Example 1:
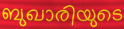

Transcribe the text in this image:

ബുഖാരിയുടെ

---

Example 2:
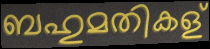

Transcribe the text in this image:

ബഹുമതികള്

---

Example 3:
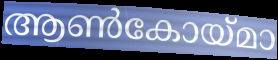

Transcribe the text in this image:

ആൺകോയ്മാ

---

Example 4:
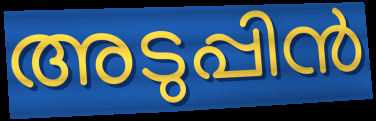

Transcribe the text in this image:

അടുപ്പിൻ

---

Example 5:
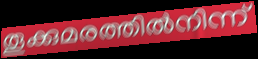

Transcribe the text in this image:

തൂക്കുമരത്തിൽനിന്ന്